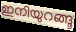
ഇനിയുറങ്ങൂ